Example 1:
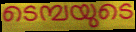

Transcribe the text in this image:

ടെമ്പയുടെ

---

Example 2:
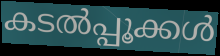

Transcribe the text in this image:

കടൽപ്പൂക്കൾ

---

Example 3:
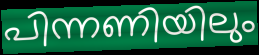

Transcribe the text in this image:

പിന്നണിയിലും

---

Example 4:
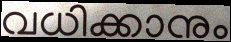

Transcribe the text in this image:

വധിക്കാനും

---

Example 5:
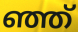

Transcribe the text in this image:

ഞ്ഞ്